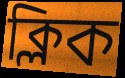
ক্লিক